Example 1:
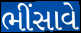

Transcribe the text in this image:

ભીંસાવે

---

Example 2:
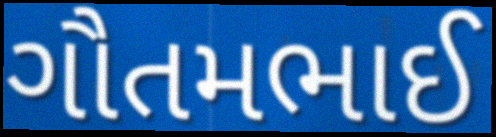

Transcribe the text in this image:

ગૌતમભાઈ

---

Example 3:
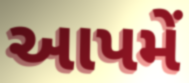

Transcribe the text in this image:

આપમેં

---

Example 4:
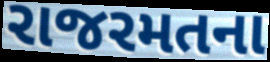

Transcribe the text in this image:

રાજરમતના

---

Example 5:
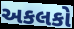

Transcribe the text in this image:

અકલકો